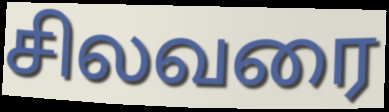
சிலவரை